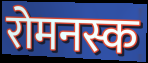
रोमनस्क